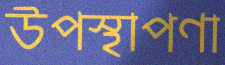
উপস্থাপণা